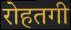
रोहतगी